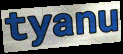
tyanu